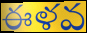
ఈళవ